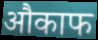
औकाफ